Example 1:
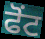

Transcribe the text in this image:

ਫੋਂਟ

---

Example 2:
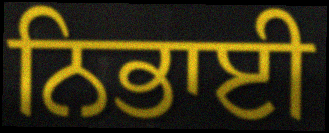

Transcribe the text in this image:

ਨਿਭਾਈ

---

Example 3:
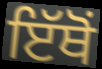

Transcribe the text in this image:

ਇੱਥੋਂ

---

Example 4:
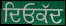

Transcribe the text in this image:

ਦਿਓਕੱਦ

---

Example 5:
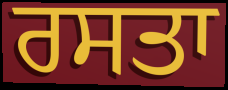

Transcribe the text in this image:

ਰਸਤਾ